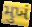
મુખં